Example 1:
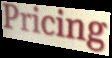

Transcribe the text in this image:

Pricing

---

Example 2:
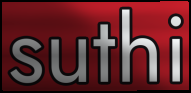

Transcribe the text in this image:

suthi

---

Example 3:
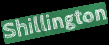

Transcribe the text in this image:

Shillington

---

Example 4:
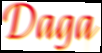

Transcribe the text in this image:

Daga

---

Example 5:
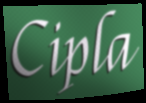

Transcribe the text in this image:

Cipla